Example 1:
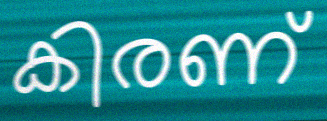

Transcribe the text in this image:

കിരണ്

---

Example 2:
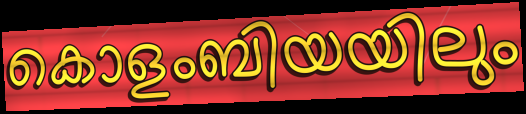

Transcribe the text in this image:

കൊളംബിയയിലും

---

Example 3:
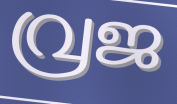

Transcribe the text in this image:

വ്രജ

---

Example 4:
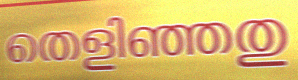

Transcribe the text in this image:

തെളിഞ്ഞതു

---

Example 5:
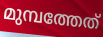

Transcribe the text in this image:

മുമ്പത്തേത്